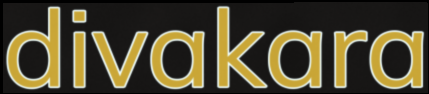
divakara